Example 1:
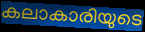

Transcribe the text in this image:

കലാകാരിയുടെ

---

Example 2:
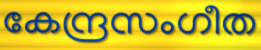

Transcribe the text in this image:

കേന്ദ്രസംഗീത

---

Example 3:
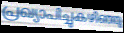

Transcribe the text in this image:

പ്രഖ്യാപിച്ചുകഴിഞ്ഞു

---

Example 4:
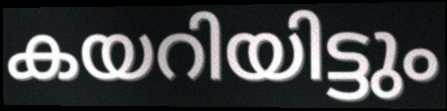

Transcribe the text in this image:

കയറിയിട്ടും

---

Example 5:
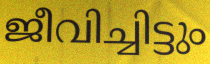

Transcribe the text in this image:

ജീവിച്ചിട്ടും